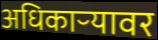
अधिकाऱ्यावर